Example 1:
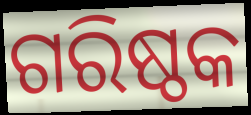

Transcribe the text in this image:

ଗରିଷ୍ଠକ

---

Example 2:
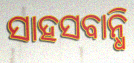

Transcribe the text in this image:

ସାହସବାନ୍ଧି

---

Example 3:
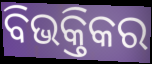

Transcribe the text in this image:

ବିଭକ୍ତିକର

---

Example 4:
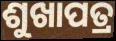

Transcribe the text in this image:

ଶୁଖାପତ୍ର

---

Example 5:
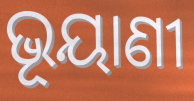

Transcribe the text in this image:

ଭୂୟାଣୀ